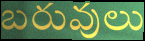
బరువులు